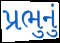
પ્રભુનું